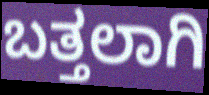
ಬತ್ತಲಾಗಿ